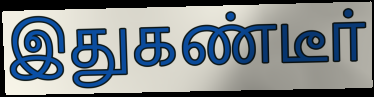
இதுகண்டீர்